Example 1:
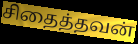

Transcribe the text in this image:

சிதைத்தவன்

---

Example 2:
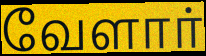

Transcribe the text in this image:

வேளார்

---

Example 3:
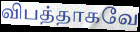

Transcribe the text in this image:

விபத்தாகவே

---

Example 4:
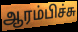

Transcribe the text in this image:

ஆரம்பிச்சு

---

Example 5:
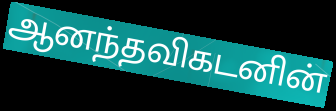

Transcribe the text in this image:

ஆனந்தவிகடனின்